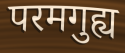
परमगुह्य